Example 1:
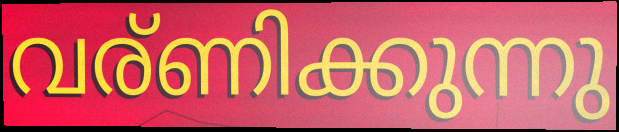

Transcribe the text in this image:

വര്ണിക്കുന്നു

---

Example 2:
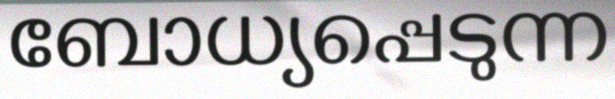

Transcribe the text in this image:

ബോധ്യപ്പെടുന്ന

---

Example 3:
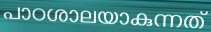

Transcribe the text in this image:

പാഠശാലയാകുന്നത്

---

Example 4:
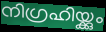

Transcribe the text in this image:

നിഗ്രഹിയ്ക്കും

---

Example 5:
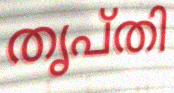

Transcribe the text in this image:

തൃപ്തി